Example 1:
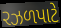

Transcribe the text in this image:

રઝળપાટે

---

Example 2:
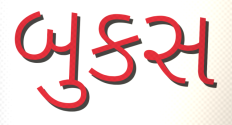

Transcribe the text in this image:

બુકસ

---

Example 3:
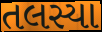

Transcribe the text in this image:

તલસ્યા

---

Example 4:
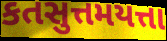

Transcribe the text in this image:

કતસુત્તમયત્તા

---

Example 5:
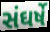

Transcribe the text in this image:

સંઘર્ષે